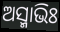
ଅସ୍ମାଭିଃ